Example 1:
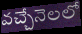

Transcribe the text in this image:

వచ్చేనెలలో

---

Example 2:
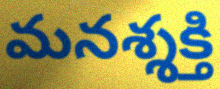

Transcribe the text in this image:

మనశ్శక్తి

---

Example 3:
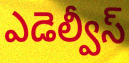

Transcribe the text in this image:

ఎడెల్వీస్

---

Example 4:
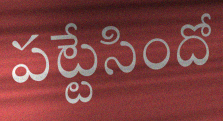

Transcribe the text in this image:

పట్టేసిందో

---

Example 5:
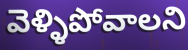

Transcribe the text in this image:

వెళ్ళిపోవాలని